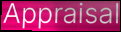
Appraisal